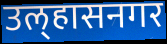
उल्हासनगर